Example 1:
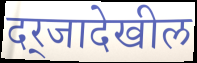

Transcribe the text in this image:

दर्जादेखील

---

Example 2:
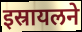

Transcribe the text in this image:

इस्रायलने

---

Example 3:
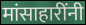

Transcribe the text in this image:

मांसाहारींनी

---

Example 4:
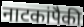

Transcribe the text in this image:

नाटकांपैकी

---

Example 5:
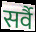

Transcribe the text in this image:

सर्वै